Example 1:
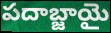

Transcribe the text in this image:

పదాబ్జాయై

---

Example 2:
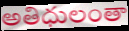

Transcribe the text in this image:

అతిధులంతా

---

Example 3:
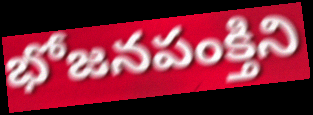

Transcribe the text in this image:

భోజనపంక్తిని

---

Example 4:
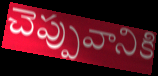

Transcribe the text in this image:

చెప్పువానికి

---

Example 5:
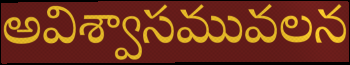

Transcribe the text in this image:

అవిశ్వాసమువలన